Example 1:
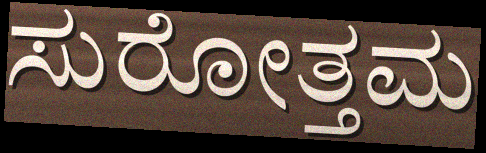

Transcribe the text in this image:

ಸುರೋತ್ತಮ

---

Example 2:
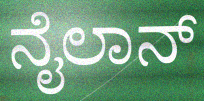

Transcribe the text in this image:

ನೈಲಾನ್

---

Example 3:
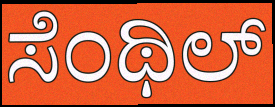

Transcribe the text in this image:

ಸೆಂಥಿಲ್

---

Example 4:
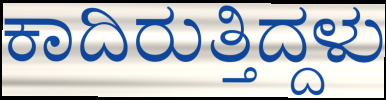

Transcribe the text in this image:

ಕಾದಿರುತ್ತಿದ್ದಳು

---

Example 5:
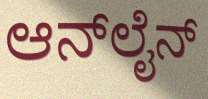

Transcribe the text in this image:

ಆನ್‌ಲೈನ್